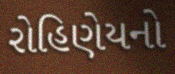
રોહિણેયનો